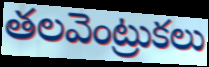
తలవెంట్రుకలు